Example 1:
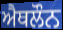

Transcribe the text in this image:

ਐਥਲੌਨ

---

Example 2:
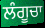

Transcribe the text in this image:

ਲੰਗੂਚਾ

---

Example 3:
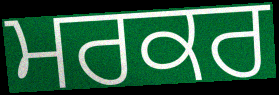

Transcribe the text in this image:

ਮਰਕਰ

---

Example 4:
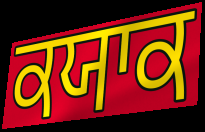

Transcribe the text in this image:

ਕਯਾਕ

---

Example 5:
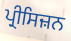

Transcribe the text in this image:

ਪ੍ਰੀਸਿਜ਼ਨ